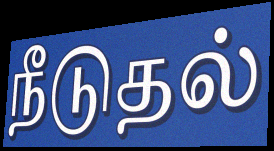
நீடுதல்